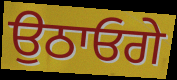
ਉਠਾਓਗੇ